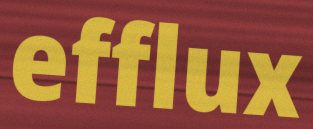
efflux